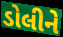
ડોલીને